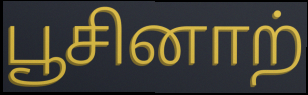
பூசினாற்